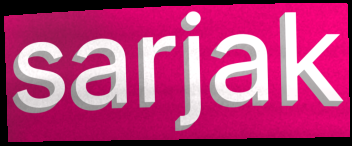
sarjak